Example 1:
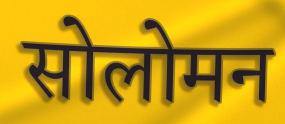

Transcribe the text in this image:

सोलोमन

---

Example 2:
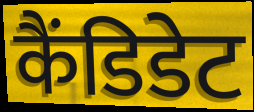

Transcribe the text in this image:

कैंडिडेट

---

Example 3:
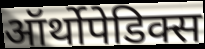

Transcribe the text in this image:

ऑर्थोपेडिक्स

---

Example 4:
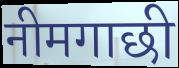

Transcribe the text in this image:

नीमगाछी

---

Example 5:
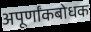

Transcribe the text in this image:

अपूर्णांकबोधक